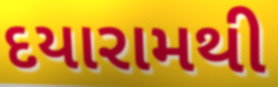
દયારામથી